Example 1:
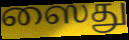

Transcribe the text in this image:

ஸைது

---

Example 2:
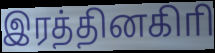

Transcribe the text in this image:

இரத்தினகிரி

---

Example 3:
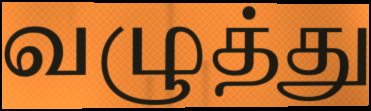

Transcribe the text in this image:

வழுத்து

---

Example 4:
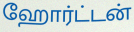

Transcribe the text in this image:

ஹோர்ட்டன்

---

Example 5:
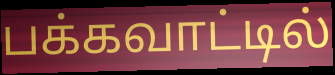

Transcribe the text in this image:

பக்கவாட்டில்